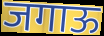
जगाऊ